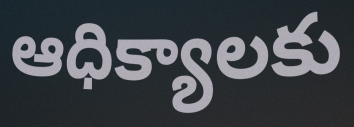
ఆధిక్యాలకు